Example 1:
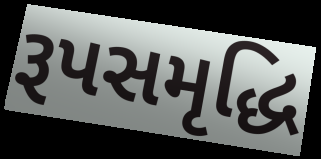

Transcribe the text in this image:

રૂપસમૃદ્ધિ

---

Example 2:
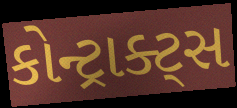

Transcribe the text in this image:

કોન્ટ્રાક્ટ્સ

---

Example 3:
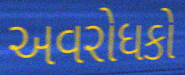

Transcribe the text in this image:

અવરોધકો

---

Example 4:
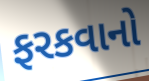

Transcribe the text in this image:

ફરકવાનો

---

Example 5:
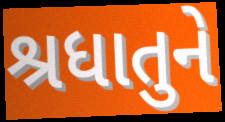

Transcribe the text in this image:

શ્રધાતુને